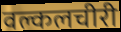
वल्कलचीरी